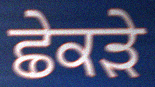
ਛੇਕੜੇ